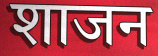
शाजन